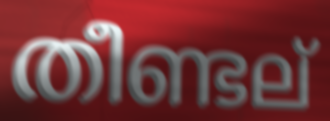
തീണ്ടല്